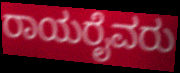
ರಾಯರೈವರು